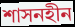
শাসনহীন